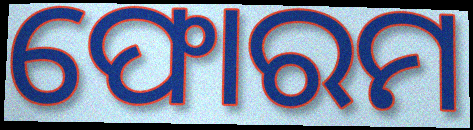
ଫୋରମ